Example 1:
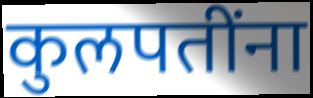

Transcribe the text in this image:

कुलपतींना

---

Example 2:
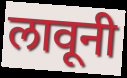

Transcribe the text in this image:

लावूनी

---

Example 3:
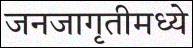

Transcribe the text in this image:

जनजागृतीमध्ये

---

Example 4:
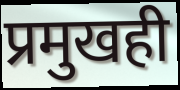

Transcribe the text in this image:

प्रमुखही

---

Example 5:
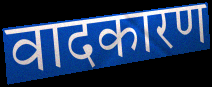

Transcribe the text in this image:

वादकारण